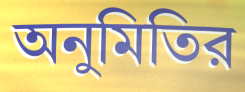
অনুমিতির